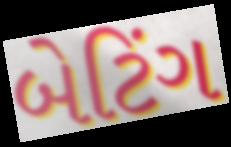
બેટિંગ